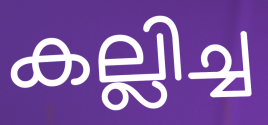
കല്ലിച്ച